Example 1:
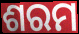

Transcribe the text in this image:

ଶରମ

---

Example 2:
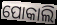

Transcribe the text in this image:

ପୋକାଲି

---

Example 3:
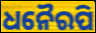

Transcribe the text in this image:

ଧନୈରପି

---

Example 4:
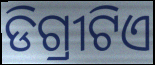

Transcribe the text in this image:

ଡିଗ୍ରୀଟିଏ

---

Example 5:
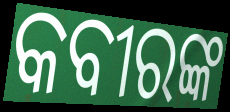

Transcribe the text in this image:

କବୀରଙ୍କ